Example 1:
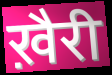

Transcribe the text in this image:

ख़ैरी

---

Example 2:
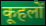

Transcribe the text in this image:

कूहलों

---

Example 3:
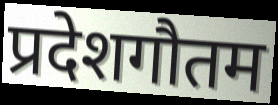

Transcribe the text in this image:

प्रदेशगौतम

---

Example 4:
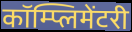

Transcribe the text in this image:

कॉम्प्लिमेंटरी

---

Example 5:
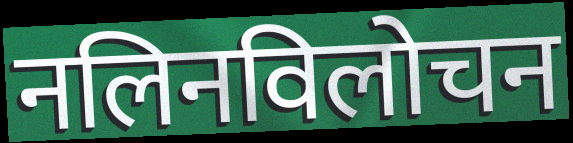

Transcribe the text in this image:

नलिनविलोचन